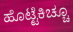
ಹೊಟ್ಟೆಕಿಚ್ಚೂ